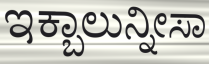
ಇಕ್ಬಾಲುನ್ನೀಸಾ